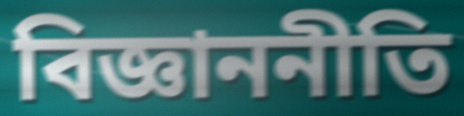
বিজ্ঞাননীতি